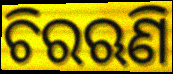
ଚିରଋଣି